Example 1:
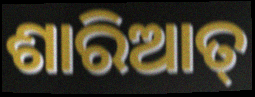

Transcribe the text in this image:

ଶାରିଆତ୍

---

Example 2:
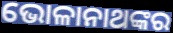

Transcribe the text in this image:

ଭୋଳାନାଥଙ୍କର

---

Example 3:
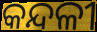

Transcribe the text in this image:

କନ୍ଦଳୀ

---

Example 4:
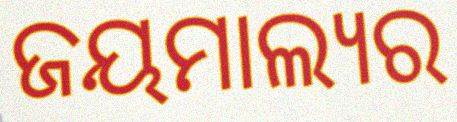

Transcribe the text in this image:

ଜୟମାଲ୍ୟର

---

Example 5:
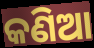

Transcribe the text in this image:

କଣିଆ